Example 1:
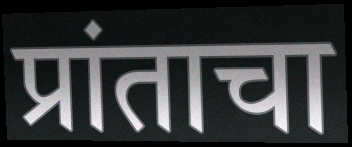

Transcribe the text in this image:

प्रांताचा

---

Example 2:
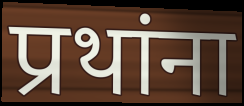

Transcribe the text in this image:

प्रथांना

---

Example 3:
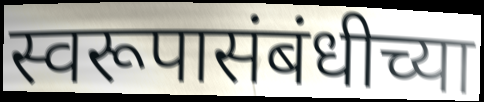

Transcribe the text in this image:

स्वरूपासंबंधीच्या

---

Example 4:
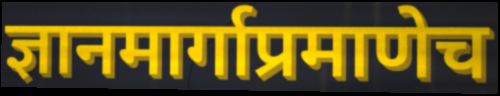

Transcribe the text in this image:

ज्ञानमार्गाप्रमाणेच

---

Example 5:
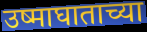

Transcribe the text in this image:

उष्माघाताच्या